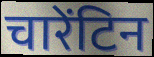
चारेंटिन